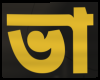
ভা